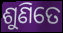
ଶୁଣିତେ